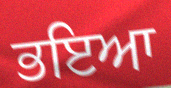
ਭਇਆ